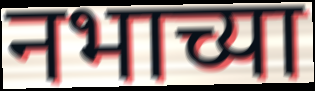
नभाच्या